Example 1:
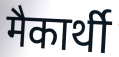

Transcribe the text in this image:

मैकार्थी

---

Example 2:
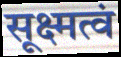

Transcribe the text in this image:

सूक्ष्मत्वं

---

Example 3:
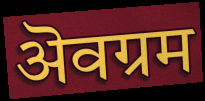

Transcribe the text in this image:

ऄवग्रम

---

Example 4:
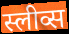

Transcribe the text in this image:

स्लीव्स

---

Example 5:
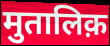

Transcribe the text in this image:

मुतालिक़